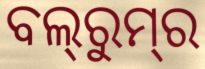
ବଲ୍‍ରୁମ୍‌ର